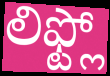
లిఫ్ట్లో